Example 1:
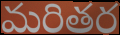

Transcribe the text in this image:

మరితర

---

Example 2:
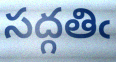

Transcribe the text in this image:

సద్గతిఁ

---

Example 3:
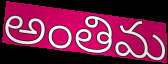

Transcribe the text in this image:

అంతిమ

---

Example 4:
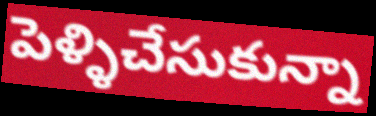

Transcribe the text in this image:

పెళ్ళిచేసుకున్నా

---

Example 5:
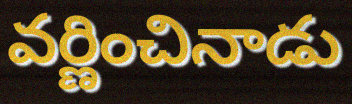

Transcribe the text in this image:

వర్ణించినాడు